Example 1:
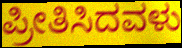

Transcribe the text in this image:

ಪ್ರೀತಿಸಿದವಳು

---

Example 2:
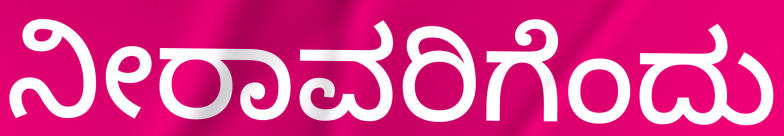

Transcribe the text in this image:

ನೀರಾವರಿಗೆಂದು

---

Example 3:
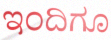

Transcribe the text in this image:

ಇಂದಿಗೂ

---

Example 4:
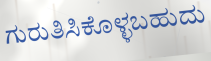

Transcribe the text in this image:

ಗುರುತಿಸಿಕೊಳ್ಳಬಹುದು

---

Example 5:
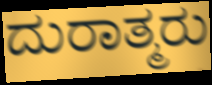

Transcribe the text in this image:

ದುರಾತ್ಮರು